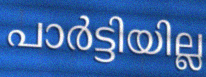
പാർട്ടിയില്ല